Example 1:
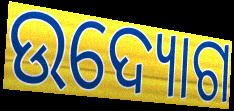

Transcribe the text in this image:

ଉଦ୍ୟୋଗ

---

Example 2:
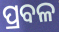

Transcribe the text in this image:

ପ୍ରବଳ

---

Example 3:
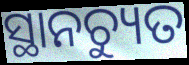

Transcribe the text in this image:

ସ୍ଥାନଚ୍ୟୁତ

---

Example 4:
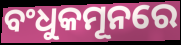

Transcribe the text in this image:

ବଂଧୁକମୂନରେ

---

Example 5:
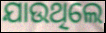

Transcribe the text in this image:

ଯାଉଥିଲେ